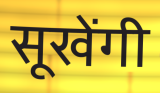
सूखेंगी